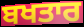
ਬਖਤਾਰ